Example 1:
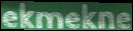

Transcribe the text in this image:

ekmekne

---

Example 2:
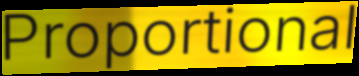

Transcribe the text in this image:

Proportional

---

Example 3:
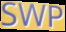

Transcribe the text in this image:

SWP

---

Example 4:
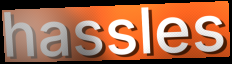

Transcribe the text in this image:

hassles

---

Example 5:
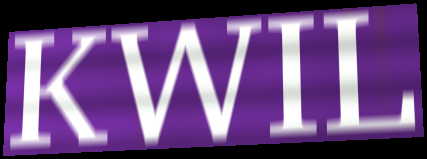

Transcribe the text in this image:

KWIL